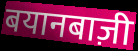
बयानबाज़ी